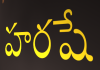
హరషే